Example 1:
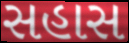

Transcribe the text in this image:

સહાસ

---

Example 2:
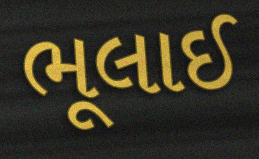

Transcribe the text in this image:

ભૂલાઈ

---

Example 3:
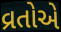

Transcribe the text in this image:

વ્રતોએ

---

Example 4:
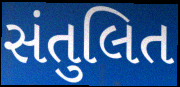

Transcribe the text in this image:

સંતુલિત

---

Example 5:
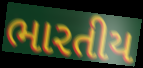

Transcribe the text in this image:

ભારતીય